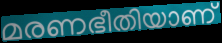
മരണഭീതിയാണ്